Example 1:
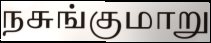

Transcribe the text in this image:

நசுங்குமாறு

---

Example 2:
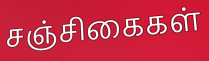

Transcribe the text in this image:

சஞ்சிகைகள்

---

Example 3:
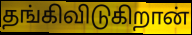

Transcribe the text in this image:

தங்கிவிடுகிறான்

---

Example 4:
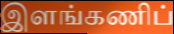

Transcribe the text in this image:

இளங்கணிப்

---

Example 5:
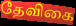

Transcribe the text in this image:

தேவிகை